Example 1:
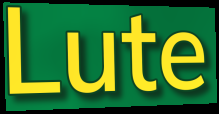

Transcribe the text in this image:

Lute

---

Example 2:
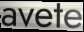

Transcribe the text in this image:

avete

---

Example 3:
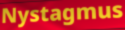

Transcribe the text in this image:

Nystagmus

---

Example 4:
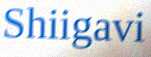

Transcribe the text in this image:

Shiigavi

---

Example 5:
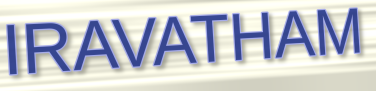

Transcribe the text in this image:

IRAVATHAM